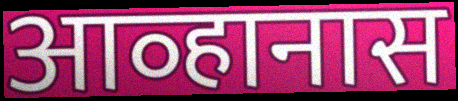
आव्हानास